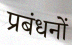
प्रबंधनों